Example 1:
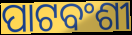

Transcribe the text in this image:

ପାଟବଂଶୀ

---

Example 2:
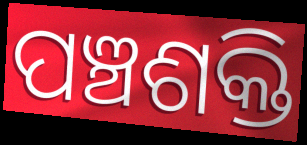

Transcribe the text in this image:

ପଞ୍ଚଶକ୍ତି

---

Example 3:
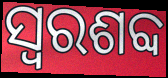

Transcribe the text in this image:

ସ୍ୱରଶବ୍ଦ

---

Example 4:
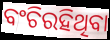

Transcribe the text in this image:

ବଂଚିରହିଥିବା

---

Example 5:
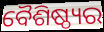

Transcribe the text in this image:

ବୈଶିଷ୍ଠ୍ୟର